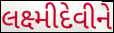
લક્ષ્મીદેવીને